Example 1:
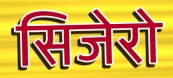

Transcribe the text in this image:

सिजेरो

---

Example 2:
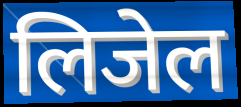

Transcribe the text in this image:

लिजेल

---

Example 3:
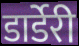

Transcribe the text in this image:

डार्डेरी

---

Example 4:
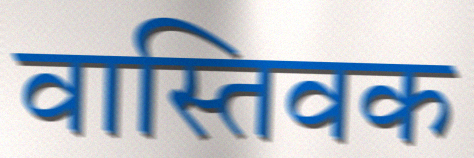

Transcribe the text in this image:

वास्तिवक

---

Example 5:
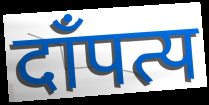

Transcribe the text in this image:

दाँपत्य